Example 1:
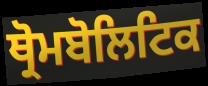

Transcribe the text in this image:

ਥ੍ਰੋਮਬੋਲਿਟਿਕ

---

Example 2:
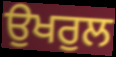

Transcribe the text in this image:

ਉਖਰੁਲ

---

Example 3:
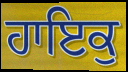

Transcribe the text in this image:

ਹਾਇਕੁ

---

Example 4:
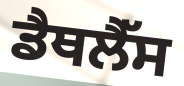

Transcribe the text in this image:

ਡੈਥਲੈੱਸ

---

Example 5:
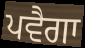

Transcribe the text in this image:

ਪਵੈਗਾ